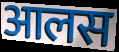
आलस